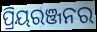
ପ୍ରିୟରଞ୍ଜନର